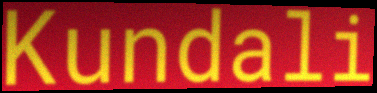
Kundali